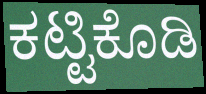
ಕಟ್ಟಿಕೊಡಿ